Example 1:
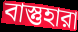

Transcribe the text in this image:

বাস্তুহারা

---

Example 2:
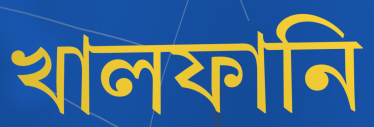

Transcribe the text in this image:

খালফানি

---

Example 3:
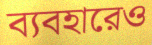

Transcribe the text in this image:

ব্যবহারেও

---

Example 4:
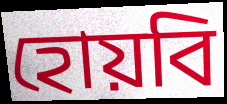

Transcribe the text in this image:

হোয়বি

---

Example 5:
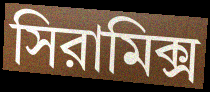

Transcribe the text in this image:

সিরামিক্স